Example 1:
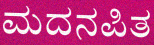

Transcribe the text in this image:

ಮದನಪಿತ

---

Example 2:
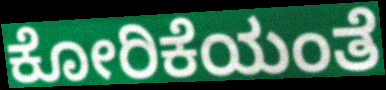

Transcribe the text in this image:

ಕೋರಿಕೆಯಂತೆ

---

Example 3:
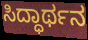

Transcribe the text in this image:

ಸಿದ್ಧಾರ್ಥನ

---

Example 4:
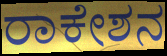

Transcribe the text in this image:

ರಾಕೇಶನ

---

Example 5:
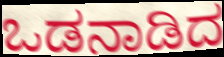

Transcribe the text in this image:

ಒಡನಾಡಿದ